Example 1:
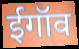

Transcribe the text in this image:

ईगॉव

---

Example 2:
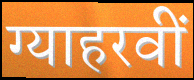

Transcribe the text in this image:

ग्याहरवीं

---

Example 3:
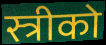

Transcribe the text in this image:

स्त्रीको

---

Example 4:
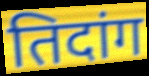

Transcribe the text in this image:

तिदांग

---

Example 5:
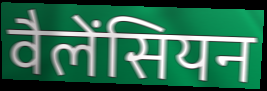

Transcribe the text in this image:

वैलेंसियन